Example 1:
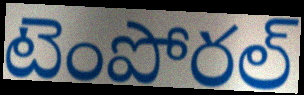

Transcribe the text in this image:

టెంపోరల్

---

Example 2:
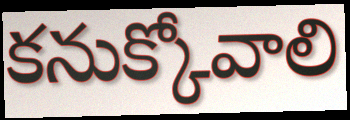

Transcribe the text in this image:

కనుక్కోవాలి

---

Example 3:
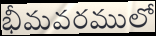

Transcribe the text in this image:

భీమవరములో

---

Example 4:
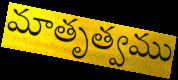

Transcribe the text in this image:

మాతృత్వము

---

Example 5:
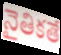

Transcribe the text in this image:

నైతికతే